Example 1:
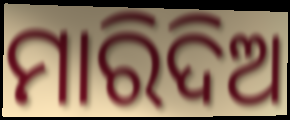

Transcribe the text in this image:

ମାରିଦିଅ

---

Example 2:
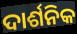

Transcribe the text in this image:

ଦାର୍ଶନିକ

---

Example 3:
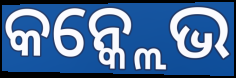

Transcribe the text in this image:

କନ୍କ୍ଲେଭ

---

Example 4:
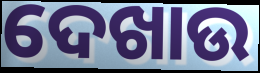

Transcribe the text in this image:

ଦେଖାଉ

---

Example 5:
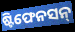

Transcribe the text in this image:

ଷ୍ଟିଫେନସନ୍